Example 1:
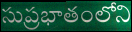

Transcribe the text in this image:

సుప్రభాతంలోని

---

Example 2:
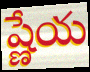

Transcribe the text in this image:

ష్ణేయ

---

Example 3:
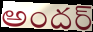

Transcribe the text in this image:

అందర్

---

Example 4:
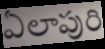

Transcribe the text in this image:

ఏలాపురి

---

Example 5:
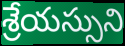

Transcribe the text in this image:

శ్రేయస్సుని